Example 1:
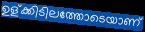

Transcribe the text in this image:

ഉള്ക്കിടിലത്തോടെയാണ്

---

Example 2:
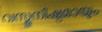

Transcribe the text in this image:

വസ്തുനിഷ്ഠമായും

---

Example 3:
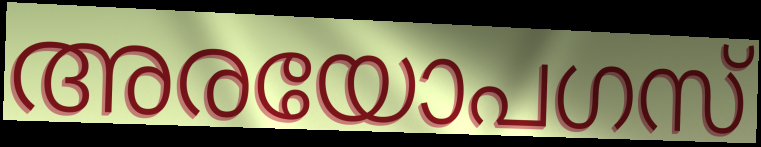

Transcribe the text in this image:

അരയോപഗസ്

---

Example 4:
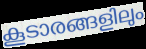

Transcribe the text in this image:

കൂടാരങ്ങളിലും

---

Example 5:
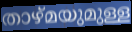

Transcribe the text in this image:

താഴ്മയുമുള്ള